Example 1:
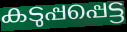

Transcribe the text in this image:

കടുപ്പപ്പെട്ട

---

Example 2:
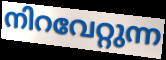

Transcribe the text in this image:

നിറവേറ്റുന്ന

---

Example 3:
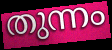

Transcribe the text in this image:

തുന്നം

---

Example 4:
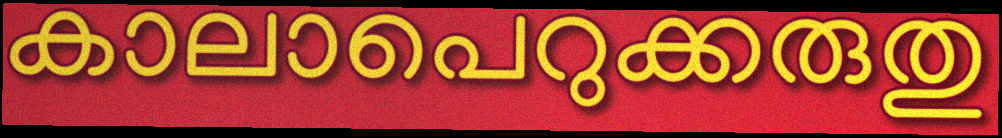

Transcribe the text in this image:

കാലാപെറുക്കരുതു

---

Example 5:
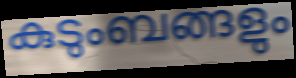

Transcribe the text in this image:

കുടുംബങ്ങളും